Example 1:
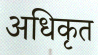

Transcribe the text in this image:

अधिकृत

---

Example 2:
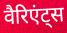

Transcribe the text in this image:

वैरिएंट्स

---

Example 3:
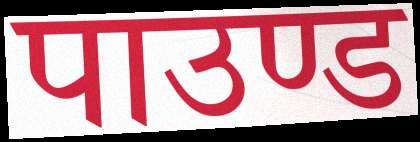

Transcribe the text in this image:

पाउण्‍ड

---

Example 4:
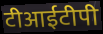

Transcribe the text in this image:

टीआईटीपी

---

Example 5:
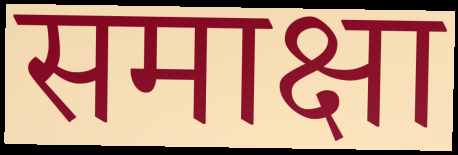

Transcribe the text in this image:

समाक्षा